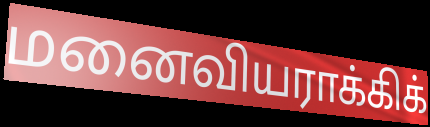
மனைவியராக்கிக்